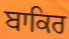
ਬਾਕਿਰ